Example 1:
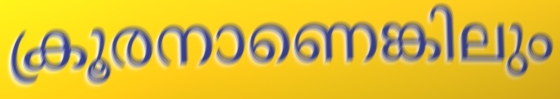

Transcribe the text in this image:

ക്രൂരനാണെങ്കിലും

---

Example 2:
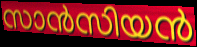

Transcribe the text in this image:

സാൻസിയൻ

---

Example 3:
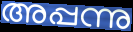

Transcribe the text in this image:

അപ്പന്നു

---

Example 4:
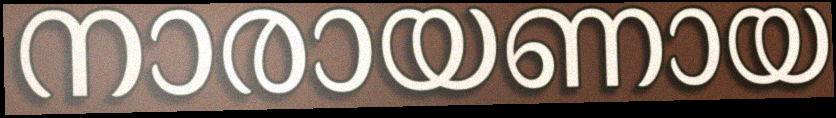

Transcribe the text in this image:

നാരായണായ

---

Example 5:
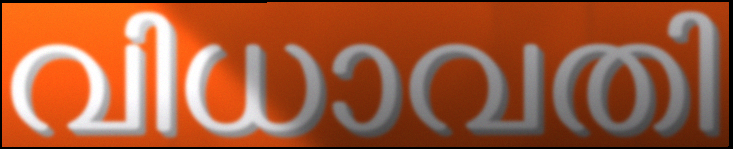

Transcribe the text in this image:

വിധാവതി